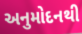
અનુમોદનથી